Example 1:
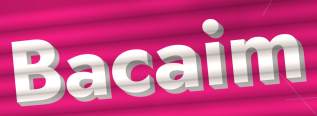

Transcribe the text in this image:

Bacaim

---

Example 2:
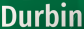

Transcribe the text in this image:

Durbin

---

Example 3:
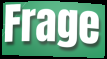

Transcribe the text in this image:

Frage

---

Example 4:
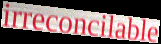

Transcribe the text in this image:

irreconcilable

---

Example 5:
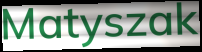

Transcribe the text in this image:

Matyszak